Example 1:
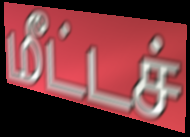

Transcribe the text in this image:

மீட்டச்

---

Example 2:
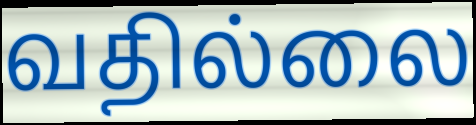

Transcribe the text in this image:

வதில்லை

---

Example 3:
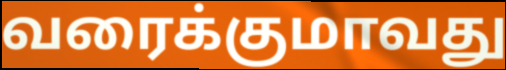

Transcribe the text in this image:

வரைக்குமாவது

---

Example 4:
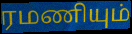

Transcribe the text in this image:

ரமணியும்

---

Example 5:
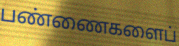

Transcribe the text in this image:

பண்ணைகளைப்